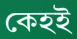
কেহই